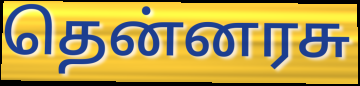
தென்னரசு